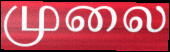
முலை